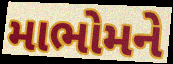
માભોમને